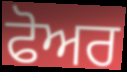
ਫੋਅਰ